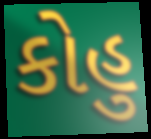
કોહુ